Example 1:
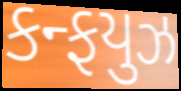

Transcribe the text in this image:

કન્ફયુઝ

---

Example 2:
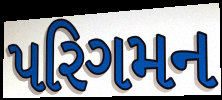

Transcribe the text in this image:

પરિગમન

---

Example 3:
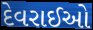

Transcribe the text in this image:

દેવરાઈઓ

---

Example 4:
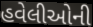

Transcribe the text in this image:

હવેલીઓની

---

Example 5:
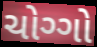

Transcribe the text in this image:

ચોગ્ગો